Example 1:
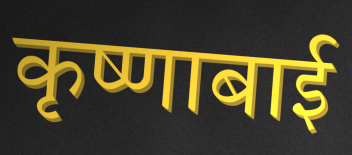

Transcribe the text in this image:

कृष्णाबाई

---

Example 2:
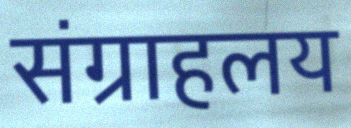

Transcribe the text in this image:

संग्राहलय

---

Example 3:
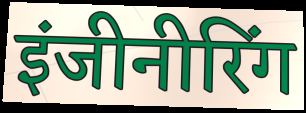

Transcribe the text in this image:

इंजीनीरिंग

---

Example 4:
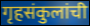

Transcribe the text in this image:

गृहसंकुलांची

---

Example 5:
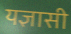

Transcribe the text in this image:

यज्ञासी